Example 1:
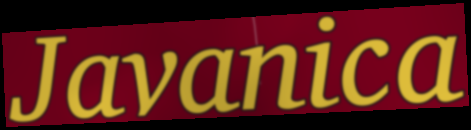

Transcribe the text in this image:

Javanica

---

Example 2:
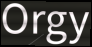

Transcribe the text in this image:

Orgy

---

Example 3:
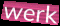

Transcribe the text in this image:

werk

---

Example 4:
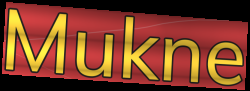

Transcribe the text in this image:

Mukne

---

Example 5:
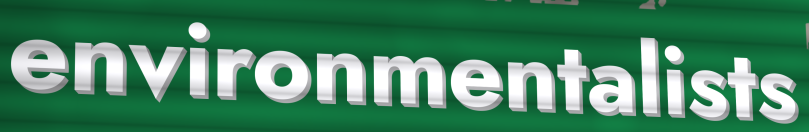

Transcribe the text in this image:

environmentalists